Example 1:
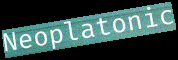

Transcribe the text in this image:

Neoplatonic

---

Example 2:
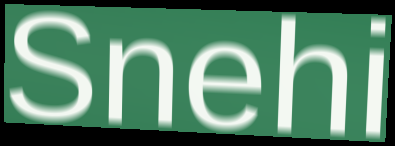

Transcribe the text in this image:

Snehi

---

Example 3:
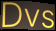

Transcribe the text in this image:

Dvs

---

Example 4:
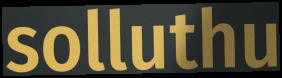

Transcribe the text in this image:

solluthu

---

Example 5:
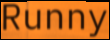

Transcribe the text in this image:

Runny